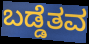
ಬಡ್ಡೆತವ